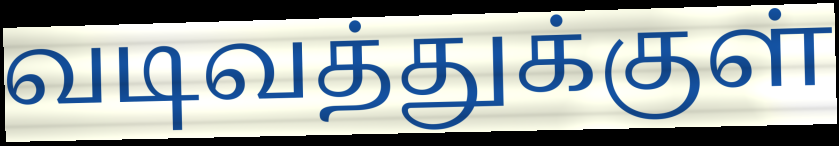
வடிவத்துக்குள்